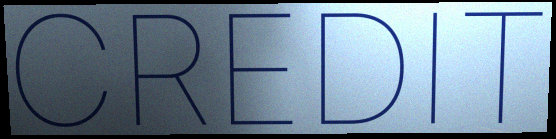
CREDIT